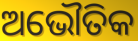
ଅଭୌତିକ